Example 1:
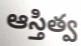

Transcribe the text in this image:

ఆస్తిత్వ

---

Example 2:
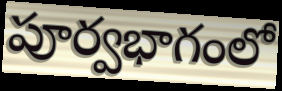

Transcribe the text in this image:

పూర్వభాగంలో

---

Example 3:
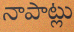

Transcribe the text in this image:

నాపాట్లు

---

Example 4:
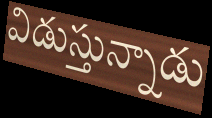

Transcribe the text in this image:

విడుస్తున్నాడు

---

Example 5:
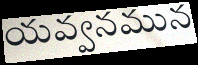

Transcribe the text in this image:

యవ్వనమున